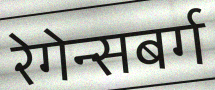
रेगेन्सबर्ग